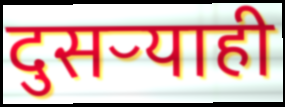
दुसऱ्याही